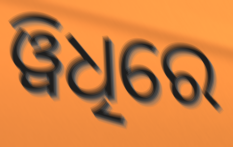
ୱିଧିରେ